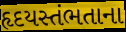
હૃદયસ્તંભતાના